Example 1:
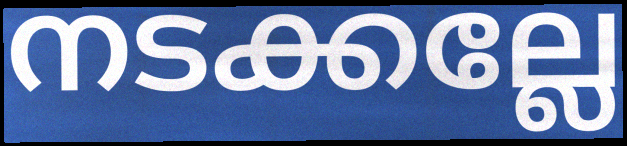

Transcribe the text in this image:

നടക്കല്ലേ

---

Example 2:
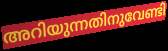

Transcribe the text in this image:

അറിയുന്നതിനുവേണ്ടി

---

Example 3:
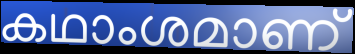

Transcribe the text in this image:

കഥാംശമാണ്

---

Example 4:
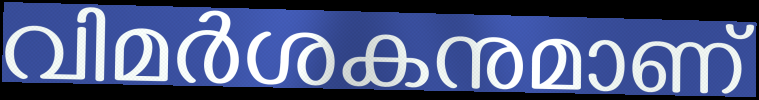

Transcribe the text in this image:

വിമർശകനുമാണ്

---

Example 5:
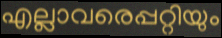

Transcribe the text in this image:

എല്ലാവരെപ്പറ്റിയും